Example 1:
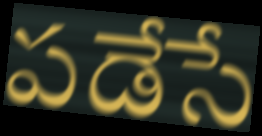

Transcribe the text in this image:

పడేసే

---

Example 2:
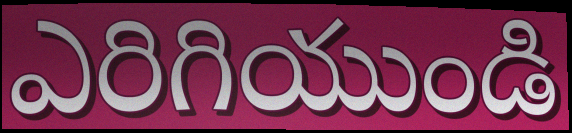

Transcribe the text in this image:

ఎరిగియుండి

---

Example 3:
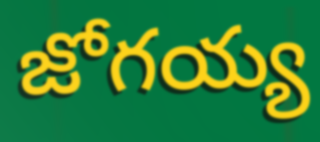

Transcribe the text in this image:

జోగయ్య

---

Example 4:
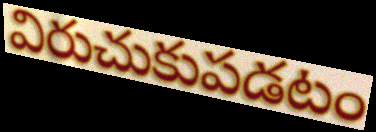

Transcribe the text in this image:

విరుచుకుపడటం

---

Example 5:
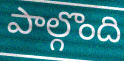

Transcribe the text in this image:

పాల్గొంది